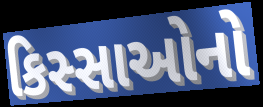
કિસ્સાઓનો